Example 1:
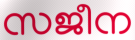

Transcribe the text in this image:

സജീന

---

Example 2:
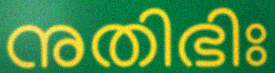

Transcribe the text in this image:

നുതിഭിഃ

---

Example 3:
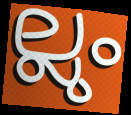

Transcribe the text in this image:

ല്ലും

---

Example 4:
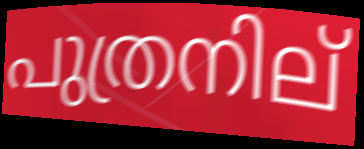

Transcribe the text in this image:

പുത്രനില്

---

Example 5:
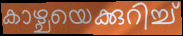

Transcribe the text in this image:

കാഴ്ചയെക്കുറിച്ച്